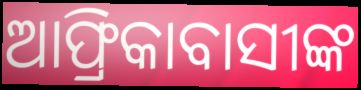
ଆଫ୍ରିକାବାସୀଙ୍କ